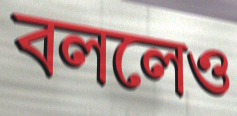
বললেও